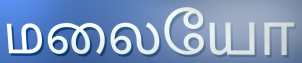
மலையோ